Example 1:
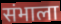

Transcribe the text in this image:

संभाला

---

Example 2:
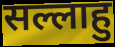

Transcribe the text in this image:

सल्लाहु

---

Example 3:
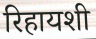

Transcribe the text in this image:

रिहायशी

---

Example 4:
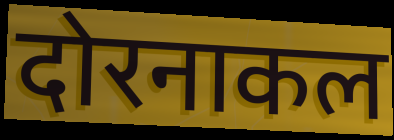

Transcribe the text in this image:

दोरनाकल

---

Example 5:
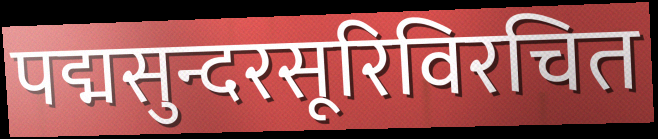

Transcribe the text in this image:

पद्मसुन्दरसूरिविरचित